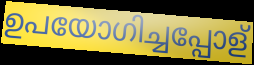
ഉപയോഗിച്ചപ്പോള്